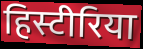
हिस्टीरिया